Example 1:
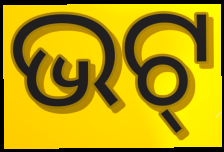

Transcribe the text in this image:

ଭଟ୍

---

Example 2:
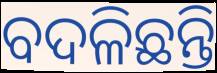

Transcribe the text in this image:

ବଦଳିଛନ୍ତି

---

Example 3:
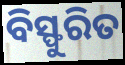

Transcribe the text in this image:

ବିସ୍ଫୁରିତ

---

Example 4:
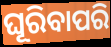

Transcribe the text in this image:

ଘୂରିବାପରି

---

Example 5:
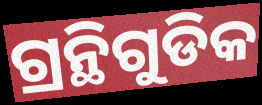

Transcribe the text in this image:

ଗ୍ରନ୍ଥିଗୁଡିକ